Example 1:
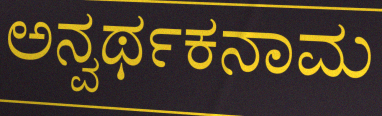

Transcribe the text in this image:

ಅನ್ವರ್ಥಕನಾಮ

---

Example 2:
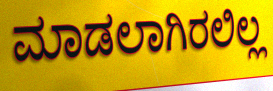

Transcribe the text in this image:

ಮಾಡಲಾಗಿರಲಿಲ್ಲ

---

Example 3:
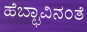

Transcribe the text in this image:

ಹೆಬ್ಟಾವಿನಂತೆ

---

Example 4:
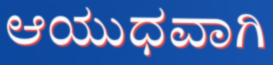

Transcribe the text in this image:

ಆಯುಧವಾಗಿ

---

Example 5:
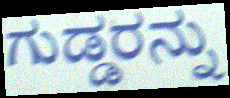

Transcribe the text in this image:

ಗುಡ್ಡರನ್ನು